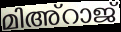
മിഅ്റാജ്